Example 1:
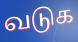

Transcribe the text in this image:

வடுக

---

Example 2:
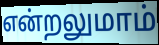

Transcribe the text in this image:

என்றலுமாம்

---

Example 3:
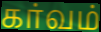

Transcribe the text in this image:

கர்வம்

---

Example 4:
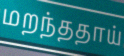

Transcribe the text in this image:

மறந்ததாய்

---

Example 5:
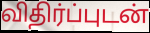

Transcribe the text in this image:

விதிர்ப்புடன்